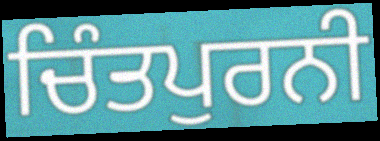
ਚਿੰਤਪੁਰਨੀ